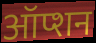
ऑप्शन